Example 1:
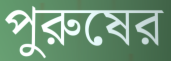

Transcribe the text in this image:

পুরুষের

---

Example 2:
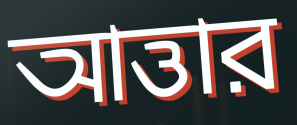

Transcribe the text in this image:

আত্তার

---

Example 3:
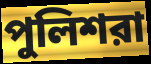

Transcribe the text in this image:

পুলিশরা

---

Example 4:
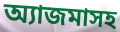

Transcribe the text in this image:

অ্যাজমাসহ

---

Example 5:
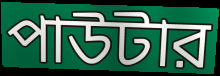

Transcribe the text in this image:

পাউটার